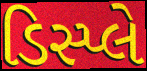
ડિસ્પ્લે